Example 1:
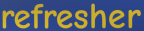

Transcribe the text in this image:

refresher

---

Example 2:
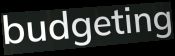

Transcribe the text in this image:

budgeting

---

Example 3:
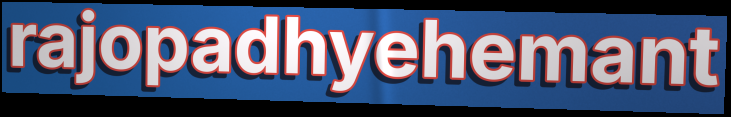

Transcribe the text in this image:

rajopadhyehemant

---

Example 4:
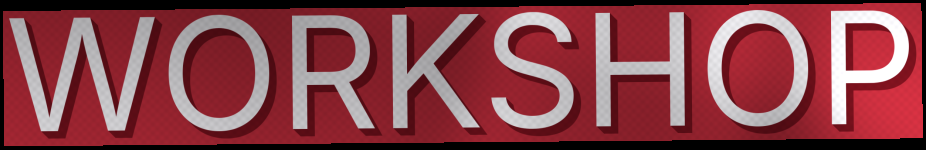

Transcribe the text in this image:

WORKSHOP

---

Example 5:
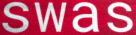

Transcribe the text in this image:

swas